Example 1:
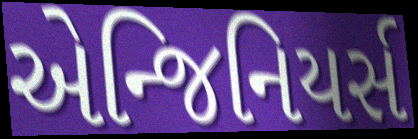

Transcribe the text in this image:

એન્જિનિયર્સ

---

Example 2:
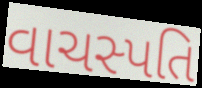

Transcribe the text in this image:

વાચસ્પતિ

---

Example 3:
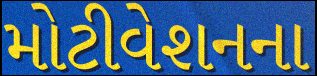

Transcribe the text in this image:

મોટીવેશનના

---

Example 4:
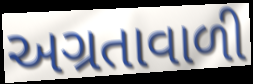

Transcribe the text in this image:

અગ્રતાવાળી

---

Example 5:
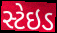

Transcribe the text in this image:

સ્ટેઇડ